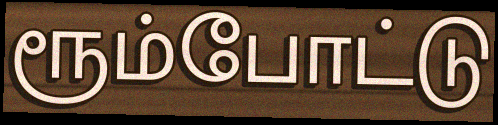
ரூம்போட்டு